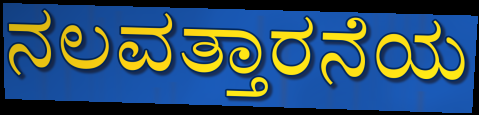
ನಲವತ್ತಾರನೆಯ